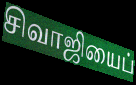
சிவாஜியைப்